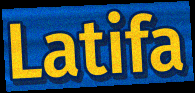
Latifa